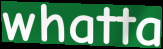
whatta